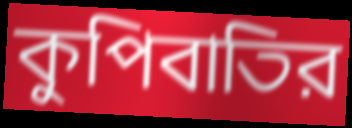
কুপিবাতির